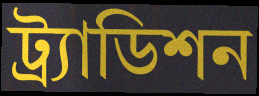
ট্র্যাডিশন